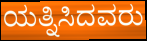
ಯತ್ನಿಸಿದವರು